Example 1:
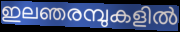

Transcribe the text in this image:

ഇലഞരമ്പുകളിൽ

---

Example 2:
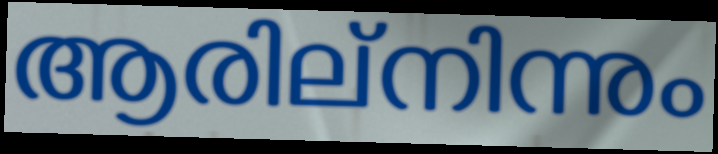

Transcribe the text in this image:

ആരില്നിന്നും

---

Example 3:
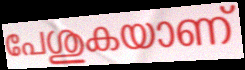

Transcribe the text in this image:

പേശുകയാണ്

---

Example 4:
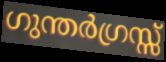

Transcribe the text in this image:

ഗുന്തർഗ്രസ്സ്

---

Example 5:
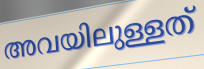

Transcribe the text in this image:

അവയിലുള്ളത്